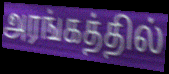
அரங்கத்தில்